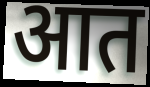
आत